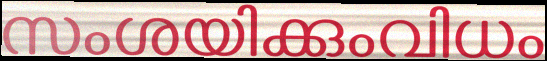
സംശയിക്കുംവിധം